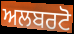
ਅਲਬਰਟੋ